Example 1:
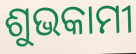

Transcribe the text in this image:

ଶୁଭକାମୀ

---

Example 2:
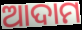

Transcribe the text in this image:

ଆଦାମ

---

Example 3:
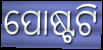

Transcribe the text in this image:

ପୋଷ୍ଟଟି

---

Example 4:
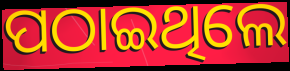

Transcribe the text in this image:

ପଠାଇଥିଲେ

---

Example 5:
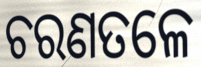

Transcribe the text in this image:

ଚରଣତଳେ